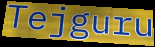
Tejguru